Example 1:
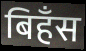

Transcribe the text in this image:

बिहँस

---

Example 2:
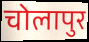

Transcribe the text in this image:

चोलापुर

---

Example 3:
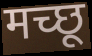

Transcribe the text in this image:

मच्छू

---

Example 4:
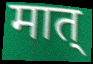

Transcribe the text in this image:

मात्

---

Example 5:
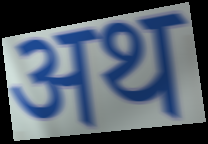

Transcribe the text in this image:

अथ